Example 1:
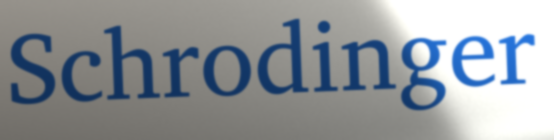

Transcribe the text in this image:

Schrodinger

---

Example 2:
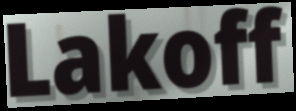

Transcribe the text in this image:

Lakoff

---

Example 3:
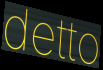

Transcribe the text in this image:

detto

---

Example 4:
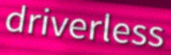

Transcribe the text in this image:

driverless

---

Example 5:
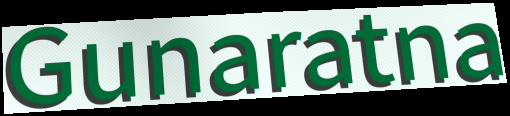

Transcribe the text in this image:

Gunaratna